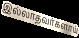
இல்லாதவர்களாய்